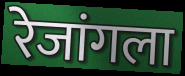
रेजांगला